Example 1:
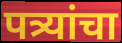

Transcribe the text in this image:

पत्र्यांचा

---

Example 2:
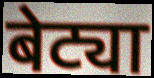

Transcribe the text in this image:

बेट्या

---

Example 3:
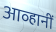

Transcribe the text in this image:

आव्हानीं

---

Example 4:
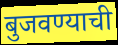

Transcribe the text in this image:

बुजवण्याची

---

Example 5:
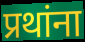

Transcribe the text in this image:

प्रथांना